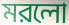
মরলো